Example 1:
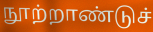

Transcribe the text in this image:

நூற்றாண்டுச்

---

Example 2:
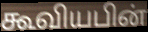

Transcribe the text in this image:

கூவியபின்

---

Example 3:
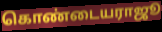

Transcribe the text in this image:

கொண்டையராஜூ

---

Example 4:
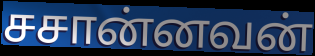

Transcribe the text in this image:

சசான்னவன்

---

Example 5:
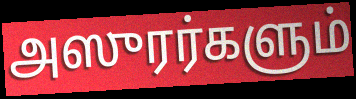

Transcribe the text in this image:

அஸுரர்களும்